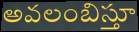
అవలంబిస్తూ